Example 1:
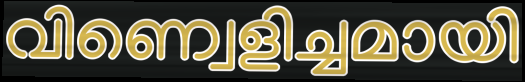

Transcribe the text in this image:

വിണ്വെളിച്ചമായി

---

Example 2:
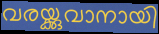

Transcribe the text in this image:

വരയ്ക്കുവാനായി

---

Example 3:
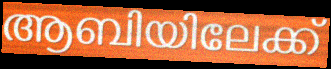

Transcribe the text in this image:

ആബിയിലേക്ക്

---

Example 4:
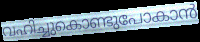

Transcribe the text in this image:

വഹിച്ചുകൊണ്ടുപോകാൻ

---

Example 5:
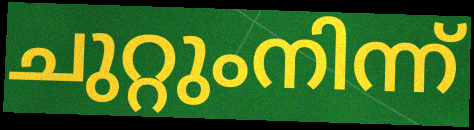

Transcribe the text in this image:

ചുറ്റുംനിന്ന്